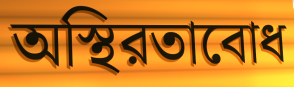
অস্থিরতাবোধ